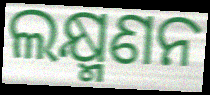
ଲକ୍ଷ୍ମଣନ